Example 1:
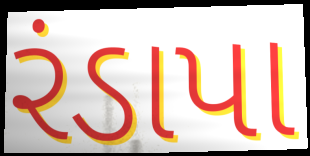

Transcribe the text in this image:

રંડાપા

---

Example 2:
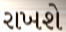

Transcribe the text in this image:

રાખશે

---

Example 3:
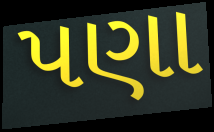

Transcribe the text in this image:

પણા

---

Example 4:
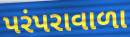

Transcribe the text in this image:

પરંપરાવાળા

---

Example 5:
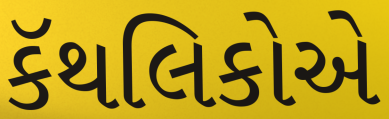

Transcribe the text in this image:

કૅથલિકોએ